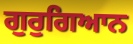
ਗੁਰੁਗਿਆਨ